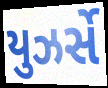
યુઝર્સે